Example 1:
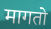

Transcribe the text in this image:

मागतो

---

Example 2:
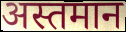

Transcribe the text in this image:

अस्तमान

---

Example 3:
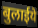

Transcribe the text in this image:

बुलाईये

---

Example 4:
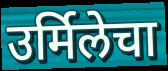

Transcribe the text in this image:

उर्मिलेचा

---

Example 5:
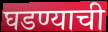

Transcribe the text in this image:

घडण्याची